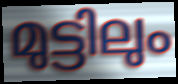
മുട്ടിലും